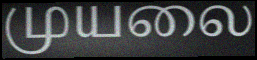
முயலை